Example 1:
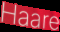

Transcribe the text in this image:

Haare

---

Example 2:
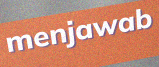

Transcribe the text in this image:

menjawab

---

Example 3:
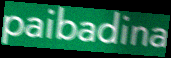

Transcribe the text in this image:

paibadina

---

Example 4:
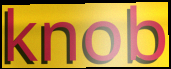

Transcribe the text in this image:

knob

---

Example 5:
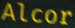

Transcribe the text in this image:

Alcor